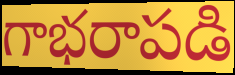
గాభరాపడి